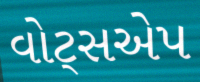
વોટ્સએપ